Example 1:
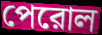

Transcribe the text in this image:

পেরোল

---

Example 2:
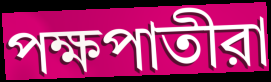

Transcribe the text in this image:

পক্ষপাতীরা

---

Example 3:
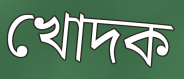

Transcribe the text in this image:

খোদক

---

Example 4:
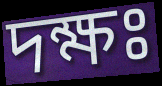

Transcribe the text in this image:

দক্ষঃ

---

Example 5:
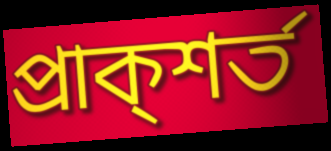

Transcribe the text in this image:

প্রাক্‌শর্ত